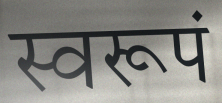
स्वरूपं